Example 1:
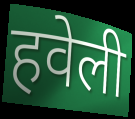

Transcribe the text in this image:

हवेली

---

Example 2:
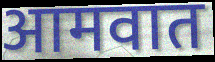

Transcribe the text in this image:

आमवात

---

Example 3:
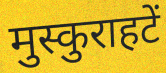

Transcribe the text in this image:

मुस्कुराहटें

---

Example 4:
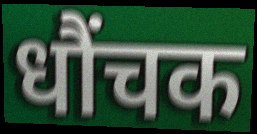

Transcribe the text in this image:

धौंचक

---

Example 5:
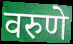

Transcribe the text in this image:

वरुणे